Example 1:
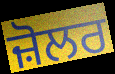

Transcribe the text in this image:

ਜ਼ੋਲਰ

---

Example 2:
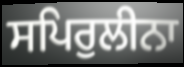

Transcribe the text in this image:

ਸਪਿਰੁਲੀਨਾ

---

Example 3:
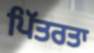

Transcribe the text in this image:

ਪਿੱਤਰਤਾ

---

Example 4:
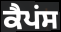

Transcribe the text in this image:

ਕੈਪਂਸ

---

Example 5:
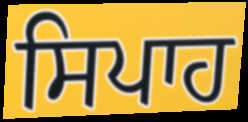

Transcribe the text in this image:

ਸਿਪਾਹ